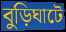
বুড়িঘাটে